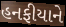
હનફીયાને